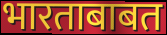
भारताबाबत